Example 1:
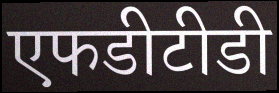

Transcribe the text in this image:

एफडीटीडी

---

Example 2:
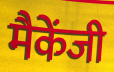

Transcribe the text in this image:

मैकेंजी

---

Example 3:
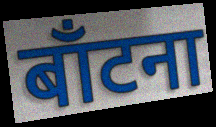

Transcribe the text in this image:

बाँटना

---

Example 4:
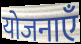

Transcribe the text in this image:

योजनाएँ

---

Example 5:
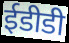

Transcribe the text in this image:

ईडीडी